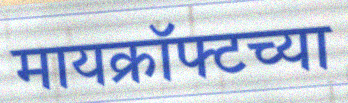
मायक्रॉफ्टच्या